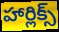
హార్లిక్స్